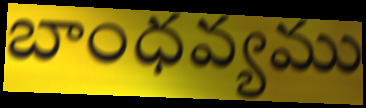
బాంధవ్యము